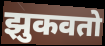
झुकवतो